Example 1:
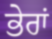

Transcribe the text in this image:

ਭੇਰਾਂ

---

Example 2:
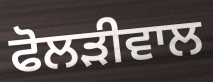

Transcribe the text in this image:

ਫੋਲੜੀਵਾਲ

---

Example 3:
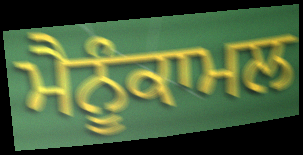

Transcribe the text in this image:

ਮੈਨੂੰਕਾਮਲ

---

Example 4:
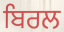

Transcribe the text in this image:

ਬਿਰਲ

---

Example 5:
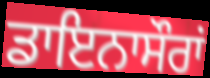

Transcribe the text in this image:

ਡਾਇਨਾਸੌਰਾਂ